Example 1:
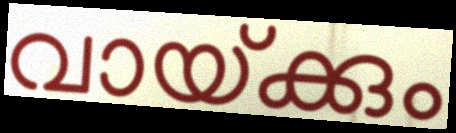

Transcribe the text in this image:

വായ്‌ക്കും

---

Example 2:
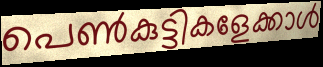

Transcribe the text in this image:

പെൺകുട്ടികളേക്കാൾ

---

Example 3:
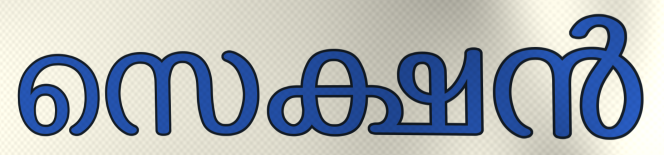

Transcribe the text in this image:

സെക്ഷൻ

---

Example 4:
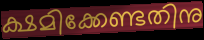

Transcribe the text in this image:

ക്ഷമിക്കേണ്ടതിനു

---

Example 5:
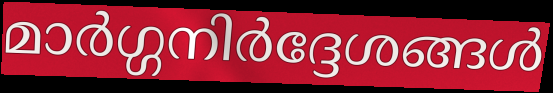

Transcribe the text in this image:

മാർഗ്ഗനിർദ്ദേശങ്ങൾ